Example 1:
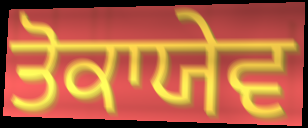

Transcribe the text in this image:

ਤੋਕਾਯੇਵ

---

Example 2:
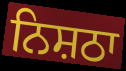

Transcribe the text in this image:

ਨਿਸ਼ਠਾ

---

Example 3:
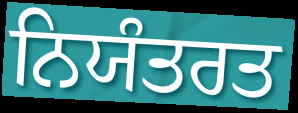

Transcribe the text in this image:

ਨਿਯੰਤਰਤ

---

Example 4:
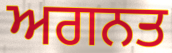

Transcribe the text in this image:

ਅਗਨਤ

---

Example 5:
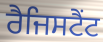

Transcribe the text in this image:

ਰੈਜਿਸਟੈਂਟ